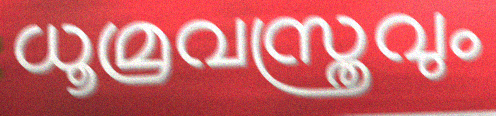
ധൂമ്രവസ്ത്രവും